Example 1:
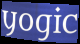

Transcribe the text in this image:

yogic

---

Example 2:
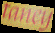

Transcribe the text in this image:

taney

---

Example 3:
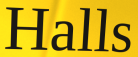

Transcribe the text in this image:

Halls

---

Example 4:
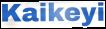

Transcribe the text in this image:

Kaikeyi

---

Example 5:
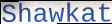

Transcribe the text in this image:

Shawkat